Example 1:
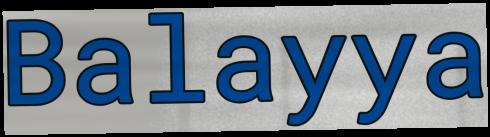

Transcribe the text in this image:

Balayya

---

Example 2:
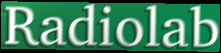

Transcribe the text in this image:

Radiolab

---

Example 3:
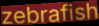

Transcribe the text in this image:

zebrafish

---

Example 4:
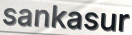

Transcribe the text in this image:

sankasur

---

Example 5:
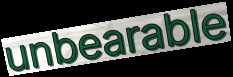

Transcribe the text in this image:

unbearable